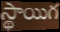
స్థాయిగ